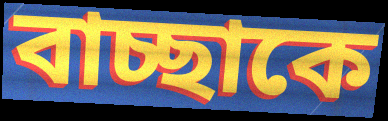
বাচ্ছাকে